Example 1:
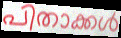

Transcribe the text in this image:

പിതാക്കൾ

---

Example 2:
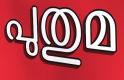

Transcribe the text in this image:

പുതുമ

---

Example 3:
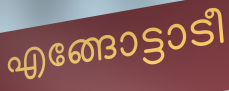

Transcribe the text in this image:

എങ്ങോട്ടാടീ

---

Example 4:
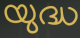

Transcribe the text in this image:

യുദ്ധ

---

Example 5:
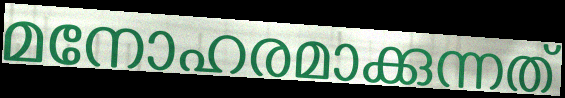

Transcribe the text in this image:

മനോഹരമാക്കുന്നത്